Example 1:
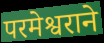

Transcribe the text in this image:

परमेश्वराने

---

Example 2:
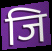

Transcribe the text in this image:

जि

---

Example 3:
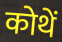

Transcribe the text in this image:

कोथें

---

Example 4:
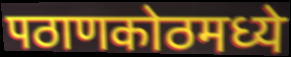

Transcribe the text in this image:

पठाणकोठमध्ये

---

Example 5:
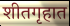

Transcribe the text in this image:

शीतगृहात